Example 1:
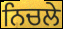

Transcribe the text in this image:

ਨਿਚਲੇ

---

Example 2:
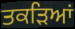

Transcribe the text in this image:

ਤਕੜਿਆਂ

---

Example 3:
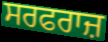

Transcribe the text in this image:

ਸਰਫਰਾਜ਼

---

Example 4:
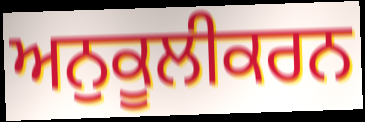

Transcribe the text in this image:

ਅਨੁਕੂਲੀਕਰਨ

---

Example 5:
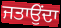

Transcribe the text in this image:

ਜਤਾਉਂਦਾ